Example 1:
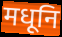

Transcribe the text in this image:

मधूनि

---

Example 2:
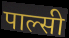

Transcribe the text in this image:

पाल्सी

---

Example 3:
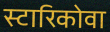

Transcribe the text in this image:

स्टारिकोवा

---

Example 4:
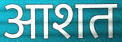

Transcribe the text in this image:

आशत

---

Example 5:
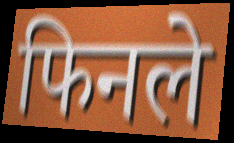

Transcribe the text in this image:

फिनले